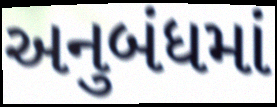
અનુબંધમાં